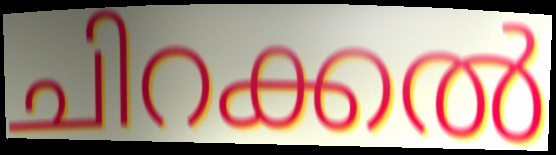
ചിറക്കൽ